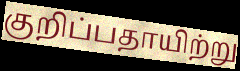
குறிப்பதாயிற்று